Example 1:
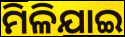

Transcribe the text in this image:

ମିଳିଯାଇ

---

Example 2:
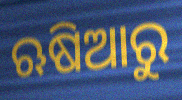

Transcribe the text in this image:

ଋଷିଆରୁ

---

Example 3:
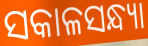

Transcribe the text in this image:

ସକାଳସନ୍ଧ୍ୟା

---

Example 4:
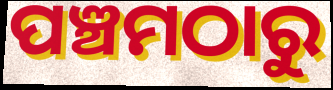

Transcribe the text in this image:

ପଞ୍ଚମଠାରୁ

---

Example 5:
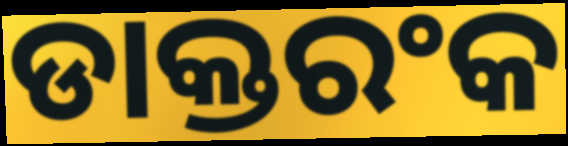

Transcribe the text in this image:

ଡାକ୍ତରଂକ